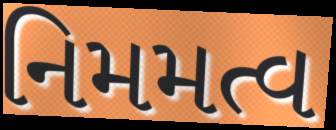
નિમમત્વ